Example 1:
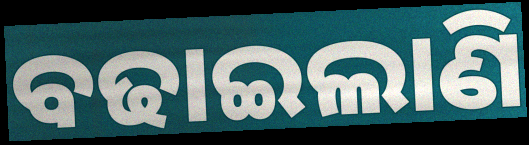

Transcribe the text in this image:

ବଢାଇଲାଣି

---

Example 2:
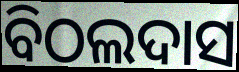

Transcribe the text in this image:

ବିଠଲଦାସ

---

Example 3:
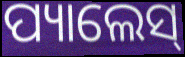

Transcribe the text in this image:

ପ୍ୟାଲେସ୍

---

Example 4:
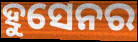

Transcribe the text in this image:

ହୁସେନର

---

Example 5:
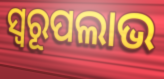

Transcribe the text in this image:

ସ୍ବରୂପଲାଭ